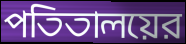
পতিতালয়ের